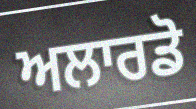
ਅਲਾਰਡੋ